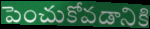
పెంచుకోవడానికి